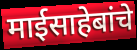
माईसाहेबांचे